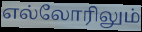
எல்லோரிலும்